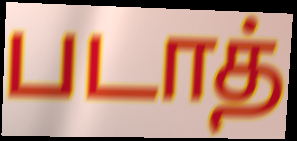
படாத்